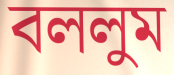
বললুম